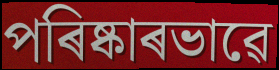
পৰিষ্কাৰভাৱে